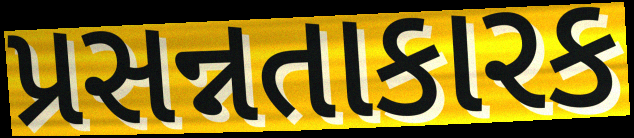
પ્રસન્નતાકારક